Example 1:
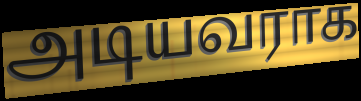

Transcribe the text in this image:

அடியவராக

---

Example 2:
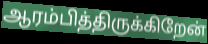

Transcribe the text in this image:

ஆரம்பித்திருக்கிறேன்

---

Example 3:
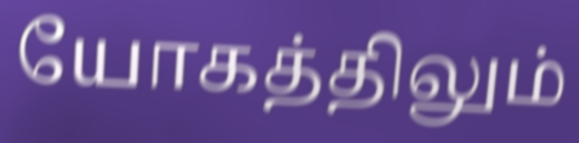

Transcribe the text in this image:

யோகத்திலும்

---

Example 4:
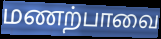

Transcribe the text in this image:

மணற்பாவை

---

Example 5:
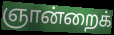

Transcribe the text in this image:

ஞான்றைக்